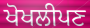
ਖੋਖਲੀਪਣ